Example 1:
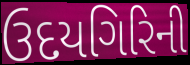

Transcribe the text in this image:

ઉદયગિરિની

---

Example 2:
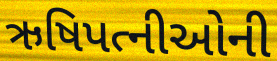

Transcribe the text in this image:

ઋષિપત્નીઓની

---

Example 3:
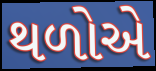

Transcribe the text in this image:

થળોએ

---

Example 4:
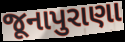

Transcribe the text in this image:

જૂનાપુરાણા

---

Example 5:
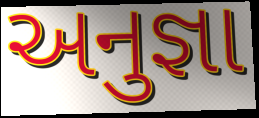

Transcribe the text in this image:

અનુજ્ઞા